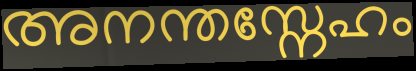
അനന്തസ്നേഹം